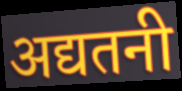
अद्यतनी